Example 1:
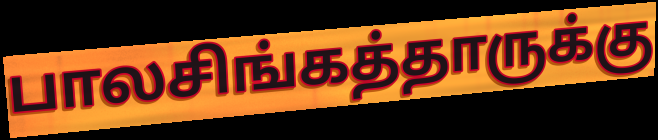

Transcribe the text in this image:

பாலசிங்கத்தாருக்கு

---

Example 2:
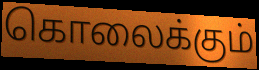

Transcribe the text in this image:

கொலைக்கும்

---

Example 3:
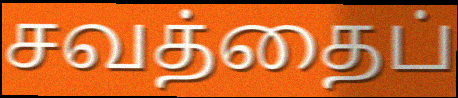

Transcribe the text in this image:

சவத்தைப்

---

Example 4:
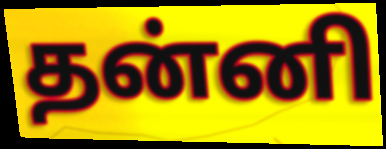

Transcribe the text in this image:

தன்னி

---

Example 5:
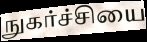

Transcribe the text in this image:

நுகர்ச்சியை